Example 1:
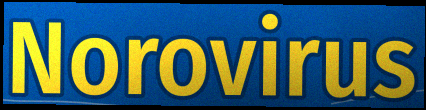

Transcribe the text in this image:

Norovirus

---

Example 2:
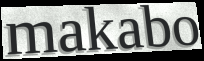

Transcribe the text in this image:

makabo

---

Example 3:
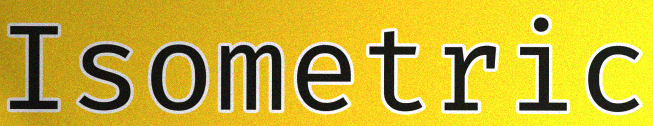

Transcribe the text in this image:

Isometric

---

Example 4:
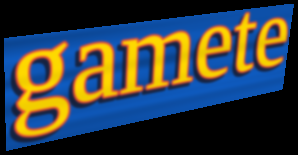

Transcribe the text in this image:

gamete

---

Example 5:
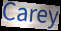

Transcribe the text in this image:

Carey